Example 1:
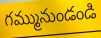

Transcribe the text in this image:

గమ్మునుండండి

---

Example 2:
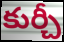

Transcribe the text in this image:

కుర్చీ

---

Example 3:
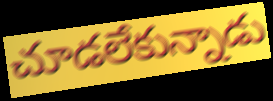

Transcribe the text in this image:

చూడలేకున్నాడు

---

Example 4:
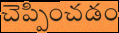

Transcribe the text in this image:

చెప్పించడం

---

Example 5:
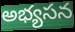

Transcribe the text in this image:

అభ్యసన